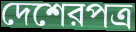
দেশেরপত্র